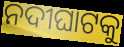
ନଦୀଘାଟକୁ